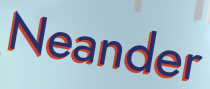
Neander